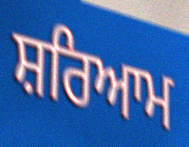
ਸ਼ਰਿਆਮ